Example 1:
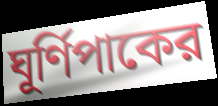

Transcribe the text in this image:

ঘূর্ণিপাকের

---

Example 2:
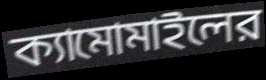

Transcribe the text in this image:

ক্যামোমাইলের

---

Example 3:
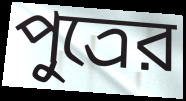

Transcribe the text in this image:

পুত্রের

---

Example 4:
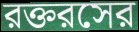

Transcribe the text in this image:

রক্তরসের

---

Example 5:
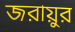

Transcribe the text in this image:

জরায়ুর